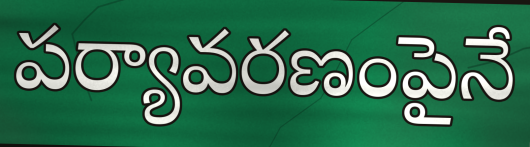
పర్యావరణంపైనే